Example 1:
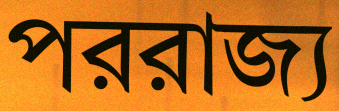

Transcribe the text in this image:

পররাজ্য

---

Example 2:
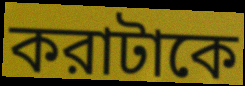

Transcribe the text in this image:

করাটাকে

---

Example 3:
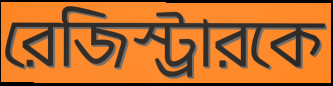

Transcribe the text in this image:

রেজিস্ট্রারকে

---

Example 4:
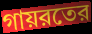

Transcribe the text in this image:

গায়রতের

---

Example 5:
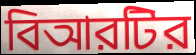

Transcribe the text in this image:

বিআরটির